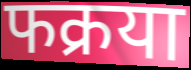
फक्रया